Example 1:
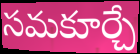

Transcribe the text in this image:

సమకూర్చే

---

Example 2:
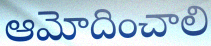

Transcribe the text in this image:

ఆమోదించాలి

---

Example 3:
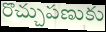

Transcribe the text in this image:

రొచ్చుపణుకు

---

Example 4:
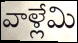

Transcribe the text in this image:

వాళ్లేమి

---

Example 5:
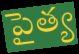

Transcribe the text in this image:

పైత్య